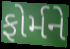
ફોર્મને